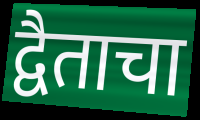
द्वैताचा